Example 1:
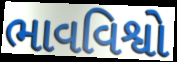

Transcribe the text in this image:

ભાવવિશ્વો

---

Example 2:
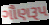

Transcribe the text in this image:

ગૌણરૂપ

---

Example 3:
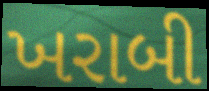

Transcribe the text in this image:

ખરાબી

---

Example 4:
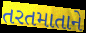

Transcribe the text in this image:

તરતમાતાને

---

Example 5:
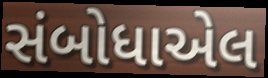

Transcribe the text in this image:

સંબોધાએલ